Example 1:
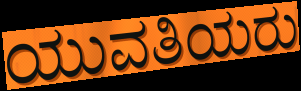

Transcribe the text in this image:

ಯುವತಿಯರು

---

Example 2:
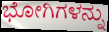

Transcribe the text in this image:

ಭೋಗಿಗಳನ್ನು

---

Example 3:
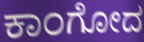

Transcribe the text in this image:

ಕಾಂಗೋದ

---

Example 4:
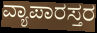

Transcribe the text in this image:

ವ್ಯಾಪಾರಸ್ತರ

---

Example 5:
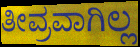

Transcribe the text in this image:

ತೀವ್ರವಾಗಿಲ್ಲ